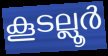
കൂടല്ലൂർ